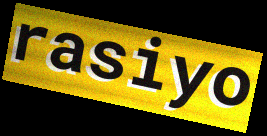
rasiyo